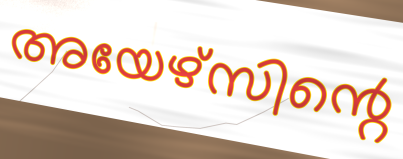
അയേഴ്സിന്റെ